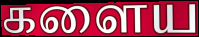
களைய